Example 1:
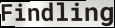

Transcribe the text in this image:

Findling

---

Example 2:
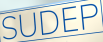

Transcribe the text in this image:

SUDEP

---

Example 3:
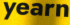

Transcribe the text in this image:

yearn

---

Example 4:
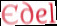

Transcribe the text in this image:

Edel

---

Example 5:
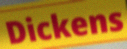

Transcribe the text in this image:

Dickens